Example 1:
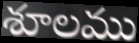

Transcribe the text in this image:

శూలము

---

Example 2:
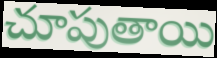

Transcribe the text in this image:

చూపుతాయి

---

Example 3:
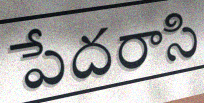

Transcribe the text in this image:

పేదరాసి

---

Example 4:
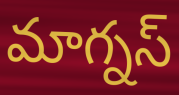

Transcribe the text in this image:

మాగ్నస్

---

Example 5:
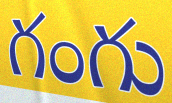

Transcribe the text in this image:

గంగు